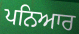
ਪਨਿਆਰ